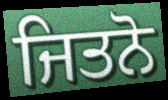
ਜਿਤਨੋ